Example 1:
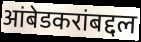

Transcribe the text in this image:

आंबेडकरांबद्दल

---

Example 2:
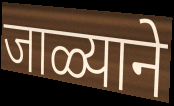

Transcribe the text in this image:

जाळ्याने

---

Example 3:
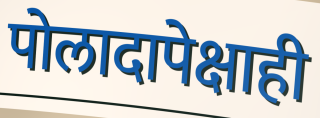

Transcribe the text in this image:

पोलादापेक्षाही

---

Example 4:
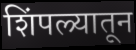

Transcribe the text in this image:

शिंपल्यातून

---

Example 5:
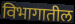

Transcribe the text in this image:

विभागातील